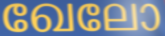
ഖേലോ